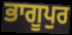
ਭਾਗੂਪੁਰ